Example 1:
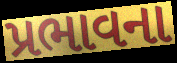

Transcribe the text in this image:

પ્રભાવના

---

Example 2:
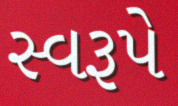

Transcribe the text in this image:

સ્વરૂપે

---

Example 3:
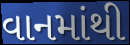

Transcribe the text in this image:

વાનમાંથી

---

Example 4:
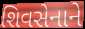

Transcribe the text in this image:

શિવસેનાને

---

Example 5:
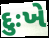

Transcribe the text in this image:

દુઃખે